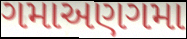
ગમાઅણગમા